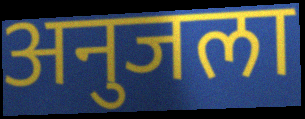
अनुजला